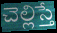
చెల్లిస్తే